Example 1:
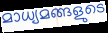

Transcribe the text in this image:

മാധ്യമങ്ങളുടെ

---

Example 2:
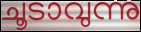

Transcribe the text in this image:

ചൂടാവുന്നു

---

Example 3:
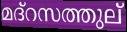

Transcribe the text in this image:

മദ്റസത്തുല്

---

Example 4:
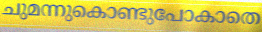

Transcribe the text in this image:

ചുമന്നുകൊണ്ടുപോകാതെ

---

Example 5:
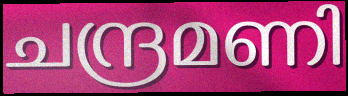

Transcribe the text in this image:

ചന്ദ്രമണി